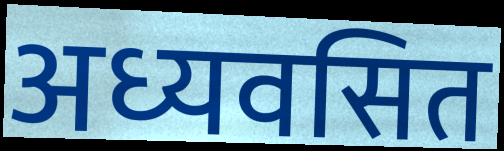
अध्यवसित